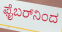
ಫೈಬರ್‌ನಿಂದ